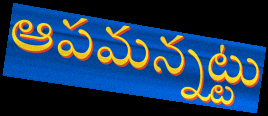
ఆపమన్నట్టు